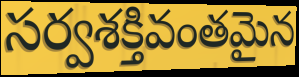
సర్వశక్తివంతమైన